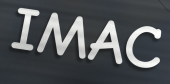
IMAC